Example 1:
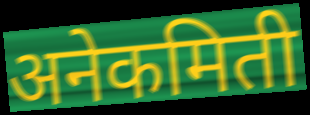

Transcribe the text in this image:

अनेकमिती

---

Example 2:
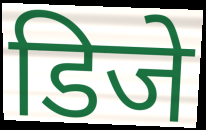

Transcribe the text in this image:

डिजे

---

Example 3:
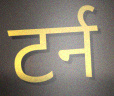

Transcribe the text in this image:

टर्न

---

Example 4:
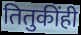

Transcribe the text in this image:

तितुकींही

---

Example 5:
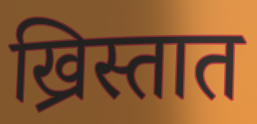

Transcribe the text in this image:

ख्रिस्तात